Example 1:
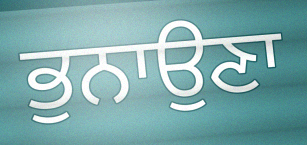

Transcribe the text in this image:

ਭੁਨਾਉਣਾ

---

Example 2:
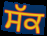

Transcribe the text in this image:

ਸੱਕ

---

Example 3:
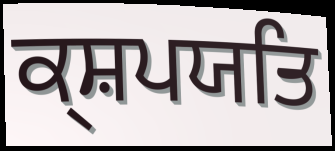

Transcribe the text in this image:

ਕ੍ਸ਼ਪਯਤਿ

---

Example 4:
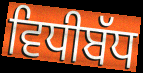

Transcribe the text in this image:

ਵਿਧੀਬੱਧ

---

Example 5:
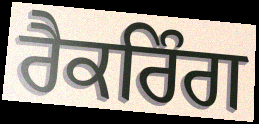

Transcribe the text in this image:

ਰੈਕਰਿੰਗ